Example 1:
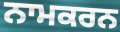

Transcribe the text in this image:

ਨਾਮਕਰਨ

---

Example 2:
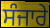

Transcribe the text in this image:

ਸੰਜਾਰੇ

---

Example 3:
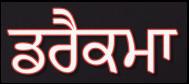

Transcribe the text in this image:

ਡਰੈਕਮਾ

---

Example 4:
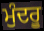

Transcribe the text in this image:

ਮੁੰਦਰੂ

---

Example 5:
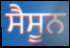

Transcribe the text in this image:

ਸੈਸੂਨ